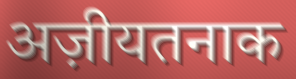
अज़ीयतनाक